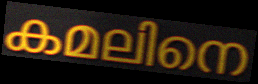
കമലിനെ